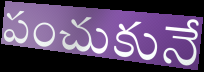
పంచుకునే